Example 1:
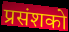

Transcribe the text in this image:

प्रसंशको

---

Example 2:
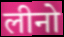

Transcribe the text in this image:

लीनो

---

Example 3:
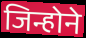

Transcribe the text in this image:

जिन्होने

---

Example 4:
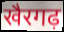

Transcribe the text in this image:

खैरगढ़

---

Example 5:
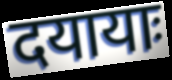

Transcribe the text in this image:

दयायाः